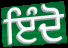
ਇੰਦੋ